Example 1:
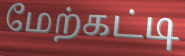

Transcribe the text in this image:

மேற்கட்டி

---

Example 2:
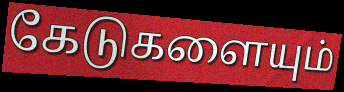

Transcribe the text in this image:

கேடுகளையும்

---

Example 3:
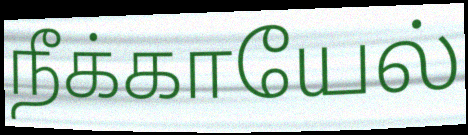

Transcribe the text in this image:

நீக்காயேல்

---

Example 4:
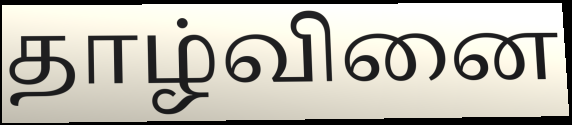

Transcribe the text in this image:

தாழ்வினை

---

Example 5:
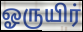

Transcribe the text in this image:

ஓருயிர்